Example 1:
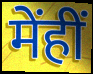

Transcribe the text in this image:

मेंहीं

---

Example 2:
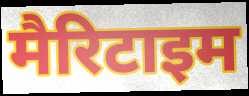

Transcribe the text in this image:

मैरिटाइम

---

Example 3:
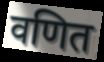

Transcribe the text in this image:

वणित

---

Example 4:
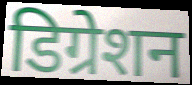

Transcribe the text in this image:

डिग्रेशन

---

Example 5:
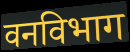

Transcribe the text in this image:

वनविभाग